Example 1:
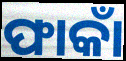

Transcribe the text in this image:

ଫାକାଁ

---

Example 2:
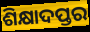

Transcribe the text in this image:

ଶିକ୍ଷାଦପ୍ତର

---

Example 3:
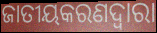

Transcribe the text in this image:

ଜାତୀୟକରଣଦ୍ୱାରା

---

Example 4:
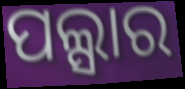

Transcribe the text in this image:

ପଲ୍ସାର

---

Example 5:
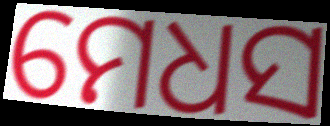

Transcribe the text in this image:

ମେଧସ